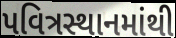
પવિત્રસ્થાનમાંથી